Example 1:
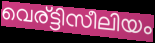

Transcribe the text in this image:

വെര്ട്ടിസീലിയം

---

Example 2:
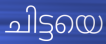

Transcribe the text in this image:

ചിട്ടയെ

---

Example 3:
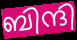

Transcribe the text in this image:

ബിന്ദി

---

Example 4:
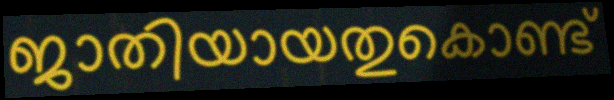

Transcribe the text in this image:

ജാതിയായതുകൊണ്ട്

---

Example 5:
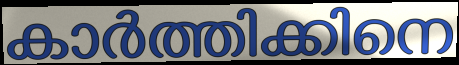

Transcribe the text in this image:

കാർത്തിക്കിനെ